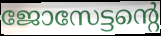
ജോസേട്ടന്റെ